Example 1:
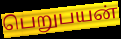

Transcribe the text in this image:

பெறுபயன்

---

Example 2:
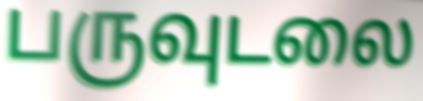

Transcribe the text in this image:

பருவுடலை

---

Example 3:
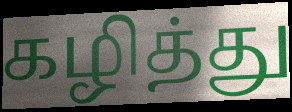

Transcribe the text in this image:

கழித்து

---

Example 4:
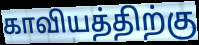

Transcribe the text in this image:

காவியத்திற்கு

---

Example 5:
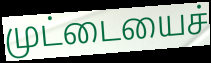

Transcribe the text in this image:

முட்டையைச்